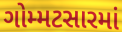
ગોમ્મટસારમાં